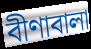
বীণাবালা